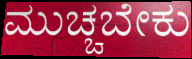
ಮುಚ್ಚಬೇಕು